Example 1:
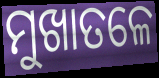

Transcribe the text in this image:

ମୁଖାତଳେ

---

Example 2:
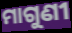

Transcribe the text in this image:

ମାଗୁଣୀ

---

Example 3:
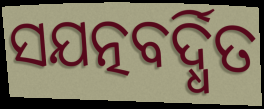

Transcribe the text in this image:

ସଯତ୍ନବର୍ଦ୍ଧିତ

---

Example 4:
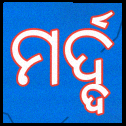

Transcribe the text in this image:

ମର୍ଦ୍ଦ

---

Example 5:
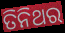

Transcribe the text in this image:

ତିନିଥର